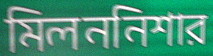
মিলননিশার